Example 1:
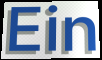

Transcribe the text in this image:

Ein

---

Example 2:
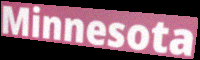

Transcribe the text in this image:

Minnesota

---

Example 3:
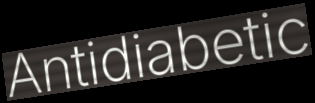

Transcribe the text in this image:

Antidiabetic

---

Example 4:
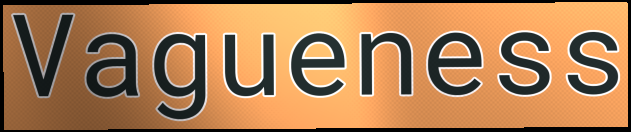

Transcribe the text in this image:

Vagueness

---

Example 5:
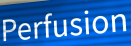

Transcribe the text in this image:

Perfusion